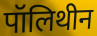
पॉलिथीन